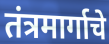
तंत्रमार्गाचे